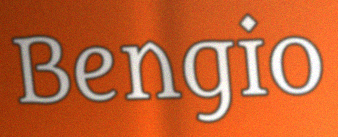
Bengio